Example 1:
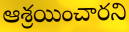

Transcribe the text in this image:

ఆశ్రయించారని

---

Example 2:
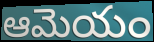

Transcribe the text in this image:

ఆమెయం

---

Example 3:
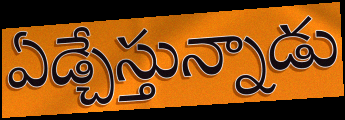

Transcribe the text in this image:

ఏడ్చేస్తున్నాడు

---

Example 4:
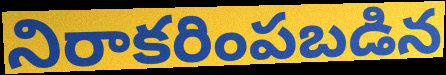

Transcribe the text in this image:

నిరాకరింపబడిన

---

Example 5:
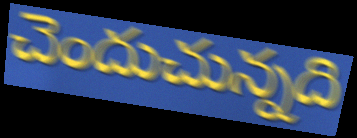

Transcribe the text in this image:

చెందుచున్నది